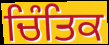
ਚਿੰਤਿਕ